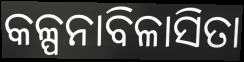
କଳ୍ପନାବିଳାସିତା